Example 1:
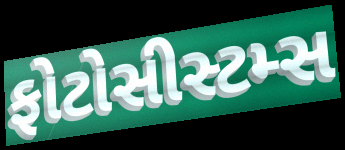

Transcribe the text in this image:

ફોટોસીસ્ટમ્સ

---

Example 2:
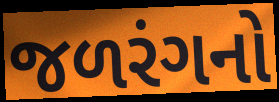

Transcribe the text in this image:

જળરંગનો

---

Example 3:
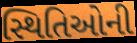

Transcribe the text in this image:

સ્થિતિઓની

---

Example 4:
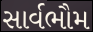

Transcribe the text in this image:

સાર્વભૌમ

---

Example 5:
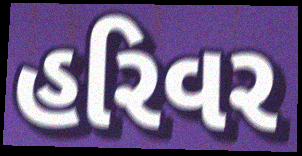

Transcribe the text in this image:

હરિવર